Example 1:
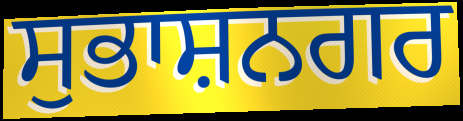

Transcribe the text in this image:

ਸੁਭਾਸ਼ਨਗਰ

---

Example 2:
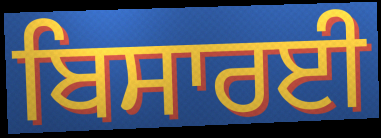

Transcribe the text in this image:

ਬਿਸਾਰਈ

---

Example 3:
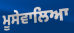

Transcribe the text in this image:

ਮੂਸੇਵਾਲਿਆ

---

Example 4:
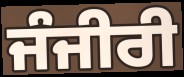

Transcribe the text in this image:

ਜੰਜੀਰੀ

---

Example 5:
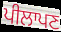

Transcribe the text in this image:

ਪੀਲਾਪਣ